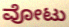
ವೋಟು